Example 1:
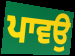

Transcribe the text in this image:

ਪਾਵਉ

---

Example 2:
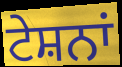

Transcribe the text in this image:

ਟੇਸ਼ਨਾਂ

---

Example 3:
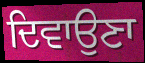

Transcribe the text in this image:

ਦਿਵਾਉਣਾ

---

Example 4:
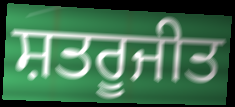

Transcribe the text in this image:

ਸ਼ਤਰੂਜੀਤ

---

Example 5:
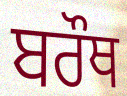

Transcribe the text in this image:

ਬਰੌਥ